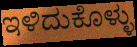
ಇಳಿದುಕೊಳ್ಳು